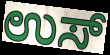
ಉಸ್